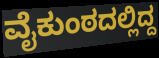
ವೈಕುಂಠದಲ್ಲಿದ್ದ